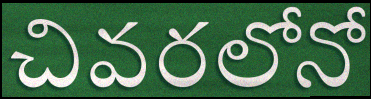
చివరలోనో